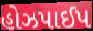
હોઝપાઈપ